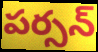
పర్సన్